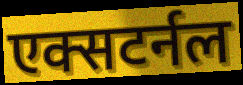
एक्सटर्नल